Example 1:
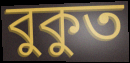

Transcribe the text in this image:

বুকুত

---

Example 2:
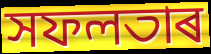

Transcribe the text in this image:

সফলতাৰ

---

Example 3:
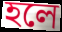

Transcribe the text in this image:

হলে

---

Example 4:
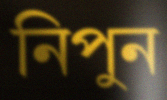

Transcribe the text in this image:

নিপুন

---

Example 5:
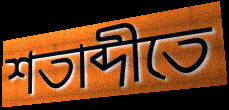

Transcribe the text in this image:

শতাব্দীতে